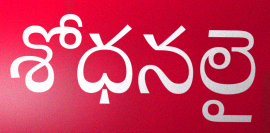
శోధనలై